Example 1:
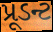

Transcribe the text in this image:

પ્રૂડન્ટ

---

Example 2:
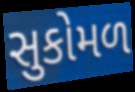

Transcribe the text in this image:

સુકોમળ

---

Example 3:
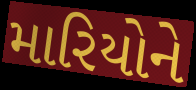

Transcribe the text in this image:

મારિયોને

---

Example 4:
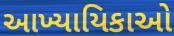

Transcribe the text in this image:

આખ્યાયિકાઓ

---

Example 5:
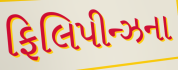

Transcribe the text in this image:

ફિલિપીન્ઝના